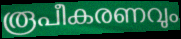
രൂപീകരണവും